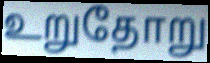
உறுதோறு